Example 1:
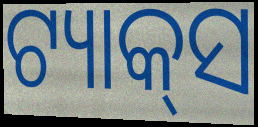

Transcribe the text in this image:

ଟ୍ୟାକ୍‌ସ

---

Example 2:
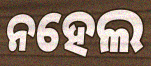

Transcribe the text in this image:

ନହେଲ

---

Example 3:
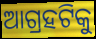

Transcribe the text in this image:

ଆଗ୍ରହଟିକୁ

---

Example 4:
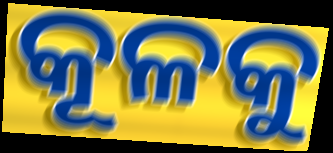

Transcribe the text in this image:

କୂଳକୁ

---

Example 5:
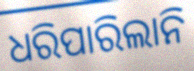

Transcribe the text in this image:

ଧରିପାରିଲାନି